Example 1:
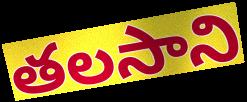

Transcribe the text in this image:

తలసాని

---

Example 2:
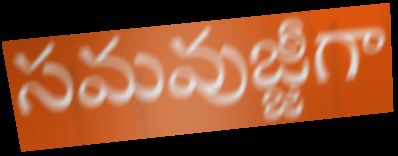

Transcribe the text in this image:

సమవుజ్జీగా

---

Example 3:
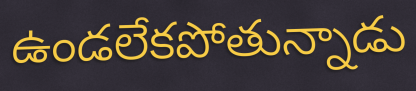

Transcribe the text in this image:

ఉండలేకపోతున్నాడు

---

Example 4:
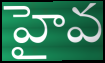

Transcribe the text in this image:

హైవ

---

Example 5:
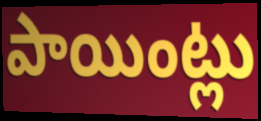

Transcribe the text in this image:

పాయింట్లు